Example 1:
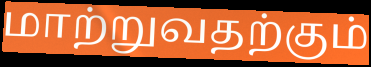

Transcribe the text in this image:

மாற்றுவதற்கும்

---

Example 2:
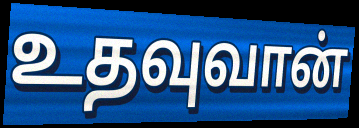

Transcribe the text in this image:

உதவுவான்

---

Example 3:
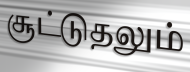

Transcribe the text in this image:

சூட்டுதலும்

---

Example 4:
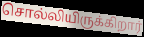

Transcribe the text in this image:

சொல்லியிருக்கிறார்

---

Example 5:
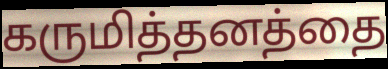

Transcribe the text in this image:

கருமித்தனத்தை